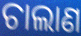
ଚାଲାଣ